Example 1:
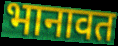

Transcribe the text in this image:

भानावत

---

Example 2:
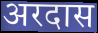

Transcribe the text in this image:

अरदास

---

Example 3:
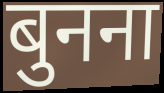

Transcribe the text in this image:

बुनना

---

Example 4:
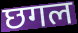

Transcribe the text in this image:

छगल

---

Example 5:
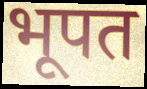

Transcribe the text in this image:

भूपत